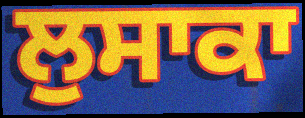
ਲੁਸਾਕਾ